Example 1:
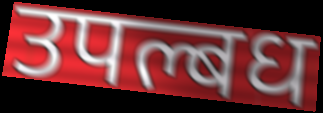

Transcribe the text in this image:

उपल्‍बध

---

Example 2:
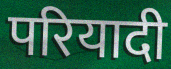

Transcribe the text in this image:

परियादी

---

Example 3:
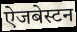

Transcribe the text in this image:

ऐजबेस्टन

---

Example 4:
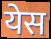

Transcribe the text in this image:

येस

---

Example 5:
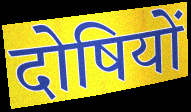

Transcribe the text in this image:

दोषियों